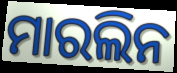
ମାରଲିନ